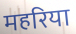
महरिया